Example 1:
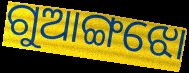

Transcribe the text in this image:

ଗୁଆଙ୍ଗଝୋ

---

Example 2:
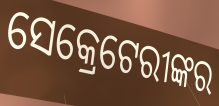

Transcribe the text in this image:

ସେକ୍ରେଟେରୀଙ୍କର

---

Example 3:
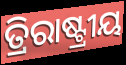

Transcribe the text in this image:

ତ୍ରିରାଷ୍ଟ୍ରୀୟ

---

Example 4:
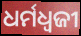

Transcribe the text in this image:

ଧର୍ମଧ୍ୱଜୀ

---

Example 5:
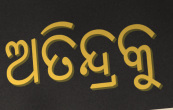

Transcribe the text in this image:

ଅତିନ୍ଦ୍ରକୁ